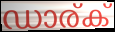
ഡാര്ക്